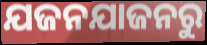
ଯଜନଯାଜନରୁ